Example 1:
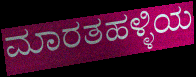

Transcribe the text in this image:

ಮಾರತಹಳ್ಳಿಯ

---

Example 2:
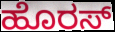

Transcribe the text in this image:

ಹೊರಸ್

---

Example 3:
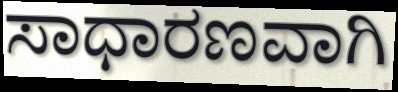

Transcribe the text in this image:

ಸಾಧಾರಣವಾಗಿ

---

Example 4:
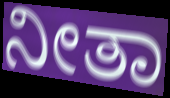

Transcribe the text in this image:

ನೀತಾ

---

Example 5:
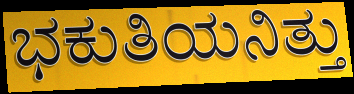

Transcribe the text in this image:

ಭಕುತಿಯನಿತ್ತು